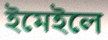
ইমেইলে